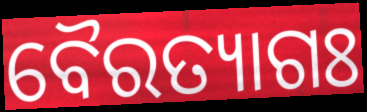
ବୈରତ୍ୟାଗଃ